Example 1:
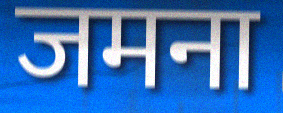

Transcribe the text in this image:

जमना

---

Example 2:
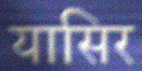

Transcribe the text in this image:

यासिर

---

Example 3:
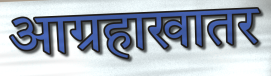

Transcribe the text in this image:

आग्रहाखातर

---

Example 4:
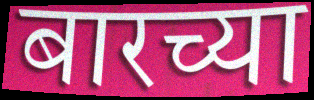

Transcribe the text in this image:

बारच्या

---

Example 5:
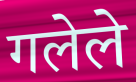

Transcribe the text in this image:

गलेले